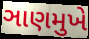
ઞાણમુખે